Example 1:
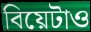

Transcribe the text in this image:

বিয়েটাও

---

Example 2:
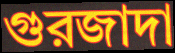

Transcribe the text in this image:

গুরজাদা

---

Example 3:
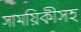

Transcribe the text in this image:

সাময়িকীসহ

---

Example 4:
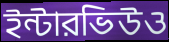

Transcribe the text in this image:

ইন্টারভিউও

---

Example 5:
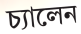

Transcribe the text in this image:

চ্যালেন